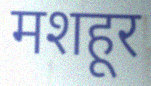
मशहूर